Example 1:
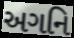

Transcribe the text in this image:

અગનિ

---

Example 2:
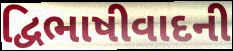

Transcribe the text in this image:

દ્વિભાષીવાદની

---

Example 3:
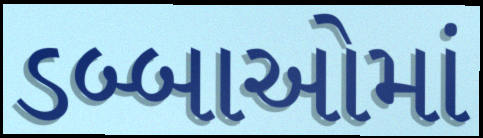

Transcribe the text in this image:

ડબ્બાઓમાં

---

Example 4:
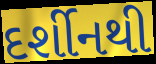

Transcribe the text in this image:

દર્શીનથી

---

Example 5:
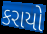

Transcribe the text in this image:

કરાયો